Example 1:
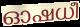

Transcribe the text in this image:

ഓഷധീ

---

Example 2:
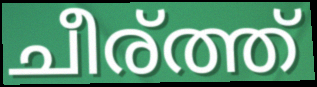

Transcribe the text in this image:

ചീര്ത്ത്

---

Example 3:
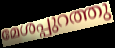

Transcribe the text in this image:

മേശപ്പുറത്തു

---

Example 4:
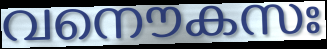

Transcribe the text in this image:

വനൌകസഃ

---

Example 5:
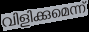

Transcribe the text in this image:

വിളിക്കുമെന്ന്